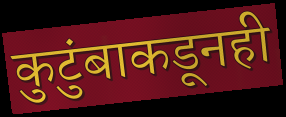
कुटुंबाकडूनही